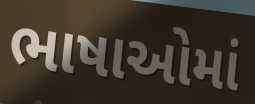
ભાષાઓમાં